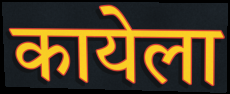
कायेला